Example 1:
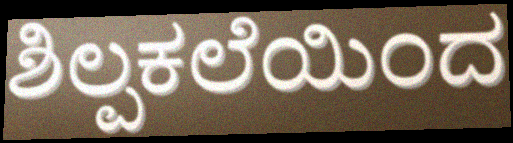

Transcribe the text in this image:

ಶಿಲ್ಪಕಲೆಯಿಂದ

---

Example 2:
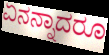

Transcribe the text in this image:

ಏನನ್ನಾದರೂ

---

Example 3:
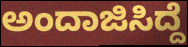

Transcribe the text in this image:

ಅಂದಾಜಿಸಿದ್ದೆ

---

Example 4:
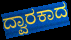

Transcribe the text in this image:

ದ್ವಾರಕಾದ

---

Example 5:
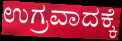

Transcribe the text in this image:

ಉಗ್ರವಾದಕ್ಕೆ